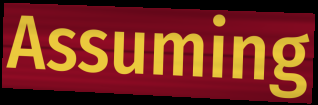
Assuming